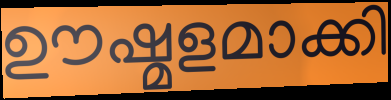
ഊഷ്മളമാക്കി